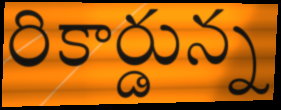
రికార్డున్న